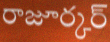
రాజూర్కర్